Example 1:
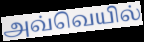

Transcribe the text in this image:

அவ்வெயில்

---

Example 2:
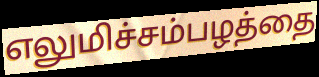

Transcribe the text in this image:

எலுமிச்சம்பழத்தை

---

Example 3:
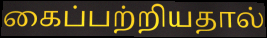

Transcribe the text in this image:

கைப்பற்றியதால்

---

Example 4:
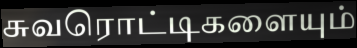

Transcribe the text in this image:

சுவரொட்டிகளையும்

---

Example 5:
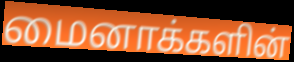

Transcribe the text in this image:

மைனாக்களின்